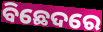
ବିଛେଦରେ